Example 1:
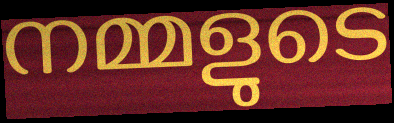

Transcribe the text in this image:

നമ്മളുടെ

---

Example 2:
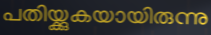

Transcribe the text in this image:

പതിയ്ക്കുകയായിരുന്നു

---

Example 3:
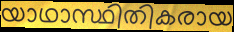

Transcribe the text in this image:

യാഥാസ്ഥിതികരായ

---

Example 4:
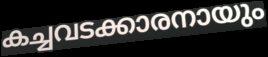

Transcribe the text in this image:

കച്ചവടക്കാരനായും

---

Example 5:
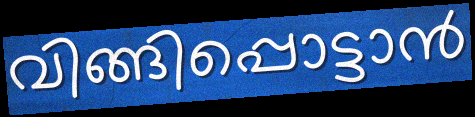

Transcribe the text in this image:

വിങ്ങിപ്പൊട്ടാൻ